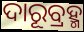
ଦାରୂବ୍ରହ୍ମ